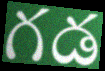
గడ